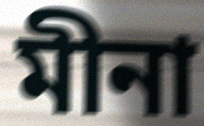
মীনা